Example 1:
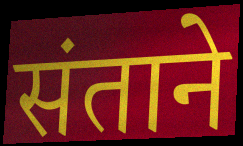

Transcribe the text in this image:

संताने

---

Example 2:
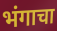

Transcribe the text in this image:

भंगाचा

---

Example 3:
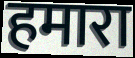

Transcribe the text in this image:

हमारा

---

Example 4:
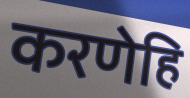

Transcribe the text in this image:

करणेहि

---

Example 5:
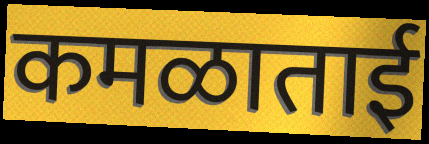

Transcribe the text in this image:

कमळाताई